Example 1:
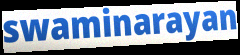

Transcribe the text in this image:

swaminarayan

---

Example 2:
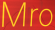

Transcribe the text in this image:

Mro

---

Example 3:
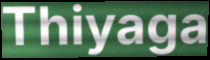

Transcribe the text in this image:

Thiyaga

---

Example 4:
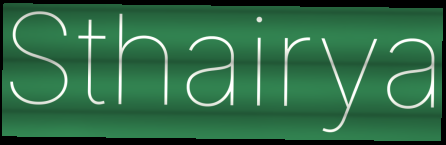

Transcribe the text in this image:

Sthairya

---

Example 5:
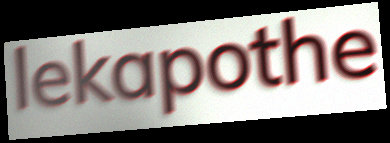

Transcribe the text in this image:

lekapothe